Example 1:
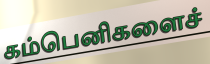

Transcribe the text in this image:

கம்பெனிகளைச்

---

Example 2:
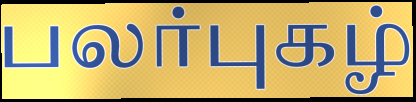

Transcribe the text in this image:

பலர்புகழ்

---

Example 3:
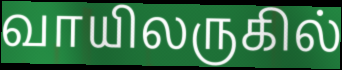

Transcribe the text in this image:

வாயிலருகில்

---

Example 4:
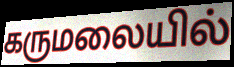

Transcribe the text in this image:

கருமலையில்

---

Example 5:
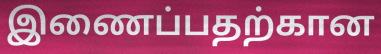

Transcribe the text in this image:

இணைப்பதற்கான